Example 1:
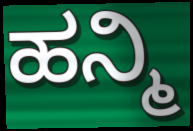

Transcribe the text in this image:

ಹನ್ಮಿ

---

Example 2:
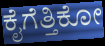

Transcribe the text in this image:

ಕೈಗೆತ್ತಿಕೋ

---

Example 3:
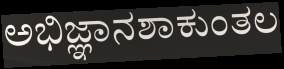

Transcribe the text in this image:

ಅಭಿಜ್ಞಾನಶಾಕುಂತಲ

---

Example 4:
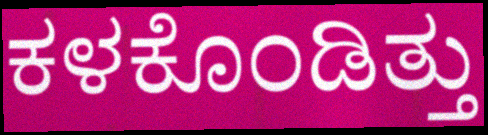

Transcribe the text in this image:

ಕಳಕೊಂಡಿತ್ತು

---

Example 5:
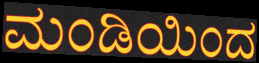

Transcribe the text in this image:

ಮಂಡಿಯಿಂದ